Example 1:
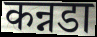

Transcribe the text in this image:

कन्नडा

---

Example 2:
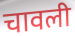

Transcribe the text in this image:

चावली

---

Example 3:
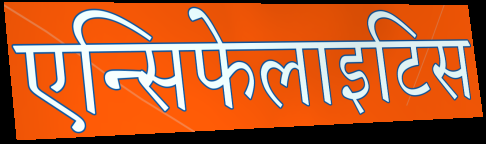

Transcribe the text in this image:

एन्सिफेलाइटिस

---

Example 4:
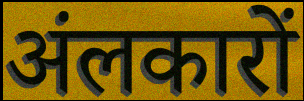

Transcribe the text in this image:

अंलकारों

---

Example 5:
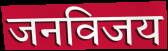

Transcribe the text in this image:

जनविजय